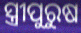
ସ୍ତ୍ରୀପୁରୁଷ